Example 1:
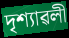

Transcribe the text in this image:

দৃশ্যাৱলী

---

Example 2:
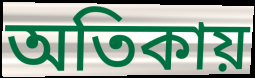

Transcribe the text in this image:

অতিকায়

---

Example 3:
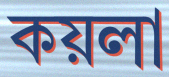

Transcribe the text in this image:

কয়লা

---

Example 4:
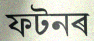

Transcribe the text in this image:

ফটনৰ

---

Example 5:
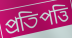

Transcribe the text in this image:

প্ৰতিপত্তি